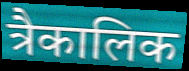
त्रैकालिक